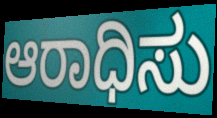
ಆರಾಧಿಸು